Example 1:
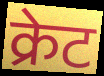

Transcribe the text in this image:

क्रेट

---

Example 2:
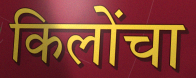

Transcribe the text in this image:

किलोंचा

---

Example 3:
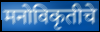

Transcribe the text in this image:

मनोविकृतीचे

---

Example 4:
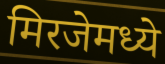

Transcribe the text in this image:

मिरजेमध्ये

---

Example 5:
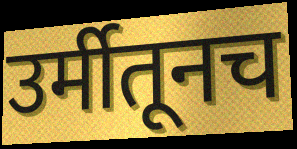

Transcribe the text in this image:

उर्मीतूनच